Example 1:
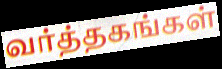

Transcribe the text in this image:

வர்த்தகங்கள்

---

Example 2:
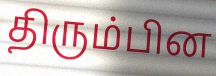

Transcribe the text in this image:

திரும்பின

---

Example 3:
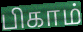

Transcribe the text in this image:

பிகாம்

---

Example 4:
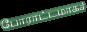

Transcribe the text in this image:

போராட்டமாகச்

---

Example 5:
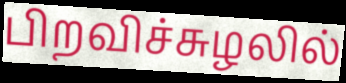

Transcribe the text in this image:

பிறவிச்சுழலில்